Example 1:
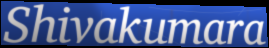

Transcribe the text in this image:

Shivakumara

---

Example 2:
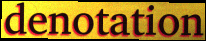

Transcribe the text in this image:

denotation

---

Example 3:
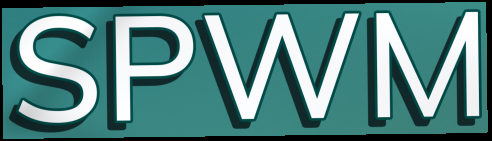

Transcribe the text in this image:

SPWM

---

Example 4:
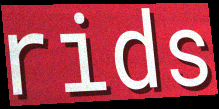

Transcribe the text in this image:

rids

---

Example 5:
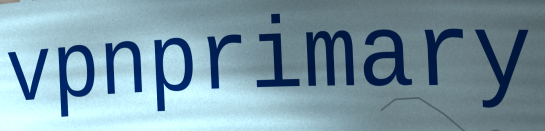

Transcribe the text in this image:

vpnprimary